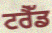
ਟਰੈੱਡ